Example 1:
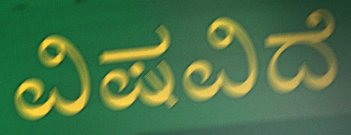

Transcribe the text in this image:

ವಿಷವಿದೆ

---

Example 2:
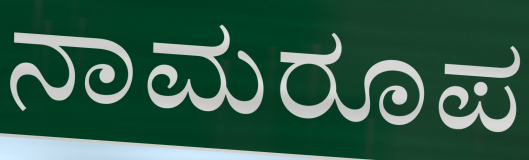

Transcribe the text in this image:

ನಾಮರೂಪ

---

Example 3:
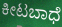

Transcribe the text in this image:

ಕೀಟಬಾಧೆ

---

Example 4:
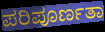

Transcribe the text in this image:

ಪರಿಪೂರ್ಣತಾ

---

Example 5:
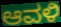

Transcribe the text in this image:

ಆವಳಿ